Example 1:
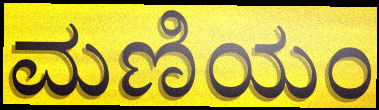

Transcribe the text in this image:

ಮಣಿಯಂ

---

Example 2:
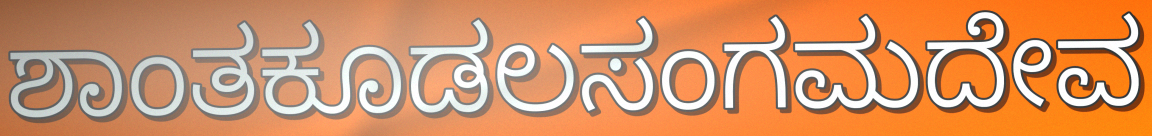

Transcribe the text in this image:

ಶಾಂತಕೂಡಲಸಂಗಮದೇವ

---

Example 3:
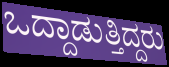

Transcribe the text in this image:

ಒದ್ದಾಡುತ್ತಿದ್ದರು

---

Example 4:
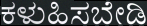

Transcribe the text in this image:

ಕಳುಹಿಸಬೇಡಿ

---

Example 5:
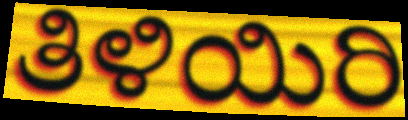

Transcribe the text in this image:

ತಿಳಿಯಿರಿ